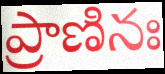
ప్రాణినః